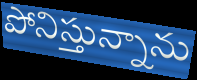
పోనిస్తున్నాను